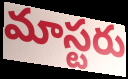
మాస్టరు